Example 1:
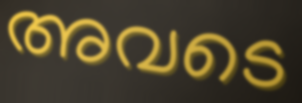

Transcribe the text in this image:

അവടെ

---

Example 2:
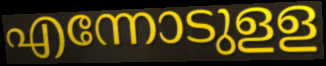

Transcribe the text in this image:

എന്നോടുളള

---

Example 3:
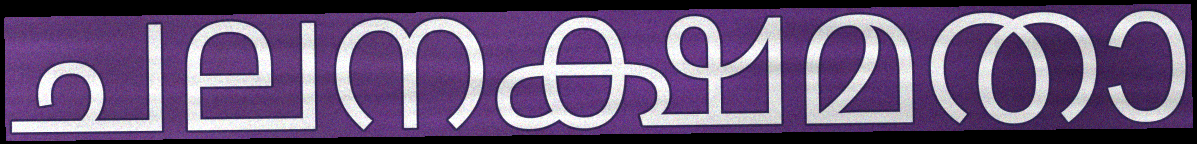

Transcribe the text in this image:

ചലനക്ഷമതാ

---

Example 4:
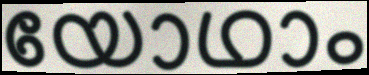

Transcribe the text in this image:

യോഥാം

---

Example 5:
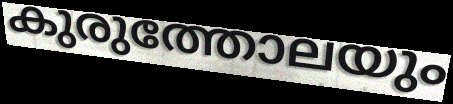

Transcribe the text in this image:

കുരുത്തോലയും